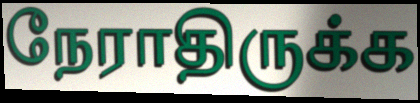
நேராதிருக்க